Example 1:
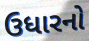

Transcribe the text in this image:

ઉધારનો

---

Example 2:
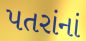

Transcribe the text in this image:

પતરાંનાં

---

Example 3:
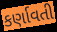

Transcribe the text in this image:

કર્ણાવતી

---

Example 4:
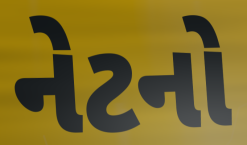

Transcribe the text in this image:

નેટનો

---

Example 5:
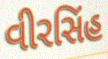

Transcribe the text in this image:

વીરસિંહ